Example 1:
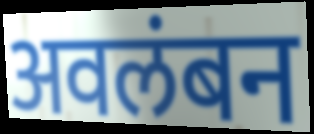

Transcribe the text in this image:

अवलंबन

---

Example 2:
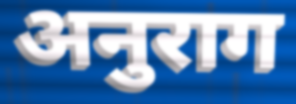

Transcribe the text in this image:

अनुराग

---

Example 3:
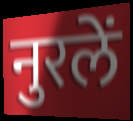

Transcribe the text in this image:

नुरलें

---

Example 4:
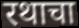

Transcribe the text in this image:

रथाचा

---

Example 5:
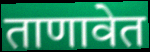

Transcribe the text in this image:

ताणावेत